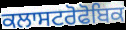
ਕਲਾਸਟਰੋਫੋਬਿਕ